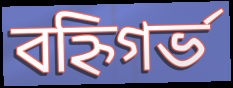
বহ্নিগর্ভ